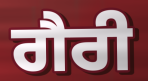
ਗੈਰੀ